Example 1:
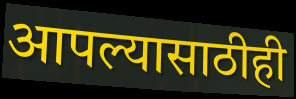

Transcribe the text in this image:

आपल्यासाठीही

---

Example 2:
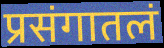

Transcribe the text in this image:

प्रसंगातलं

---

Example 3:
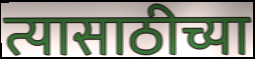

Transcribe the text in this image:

त्यासाठीच्या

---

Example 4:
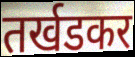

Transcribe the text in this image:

तर्खडकर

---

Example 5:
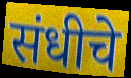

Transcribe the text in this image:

संधीचे